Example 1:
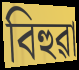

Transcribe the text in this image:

বিহুৱা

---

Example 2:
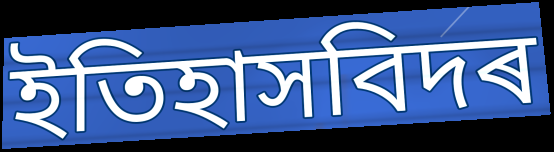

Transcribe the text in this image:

ইতিহাসবিদৰ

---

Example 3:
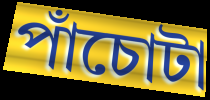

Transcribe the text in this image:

পাঁচোটা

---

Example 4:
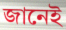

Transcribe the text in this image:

জানেই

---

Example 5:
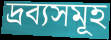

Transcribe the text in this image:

দ্ৰব্যসমূহ